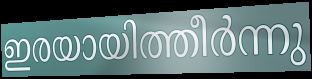
ഇരയായിത്തീർന്നു